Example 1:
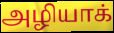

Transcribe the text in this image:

அழியாக்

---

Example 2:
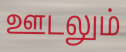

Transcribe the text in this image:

ஊடலும்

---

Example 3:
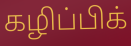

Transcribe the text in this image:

கழிப்பிக்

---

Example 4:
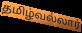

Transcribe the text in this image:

தமிழ்வல்லார்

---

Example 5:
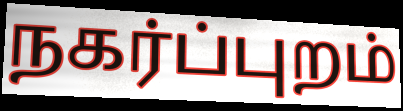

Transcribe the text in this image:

நகர்ப்புறம்